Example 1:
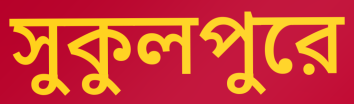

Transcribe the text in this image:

সুকুলপুরে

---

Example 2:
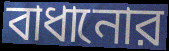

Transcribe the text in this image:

বাধানোর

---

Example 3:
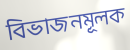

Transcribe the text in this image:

বিভাজনমূলক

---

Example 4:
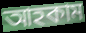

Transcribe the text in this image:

আহকাম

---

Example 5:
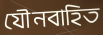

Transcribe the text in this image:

যৌনবাহিত